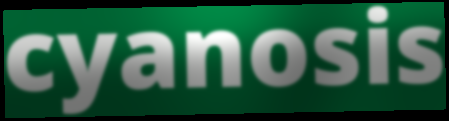
cyanosis